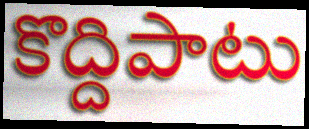
కొద్దిపాటు